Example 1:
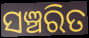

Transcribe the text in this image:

ସଞ୍ଚରିତ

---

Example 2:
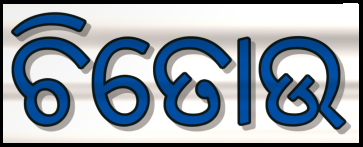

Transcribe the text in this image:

ଚିତୋଉ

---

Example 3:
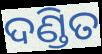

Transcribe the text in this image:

ଦଣ୍ଡିତ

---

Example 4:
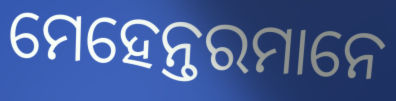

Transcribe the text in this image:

ମେହେନ୍ତରମାନେ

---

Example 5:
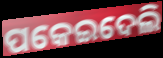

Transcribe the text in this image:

ପକେଇଦେଲି